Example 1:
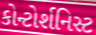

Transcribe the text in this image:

કોન્ટોર્શનિસ્ટ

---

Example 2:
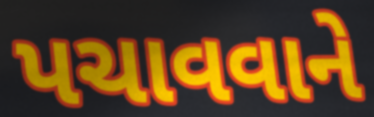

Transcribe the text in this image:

પચાવવાને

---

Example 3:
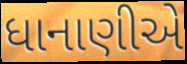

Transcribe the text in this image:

ધાનાણીએ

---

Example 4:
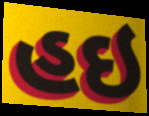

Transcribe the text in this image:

હઇ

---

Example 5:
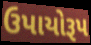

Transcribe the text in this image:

ઉપાયોરૂપ